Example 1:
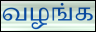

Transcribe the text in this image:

வழங்க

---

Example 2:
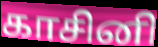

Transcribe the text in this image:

காசினி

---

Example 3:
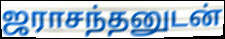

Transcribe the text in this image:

ஜராசந்தனுடன்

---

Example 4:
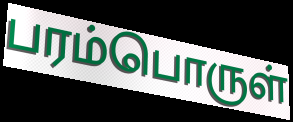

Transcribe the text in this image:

பரம்பொருள்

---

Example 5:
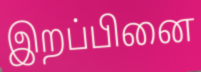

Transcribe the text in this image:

இறப்பினை